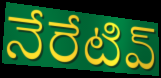
నేరేటివ్